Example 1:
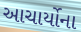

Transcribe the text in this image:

આચાર્યોના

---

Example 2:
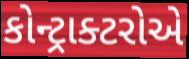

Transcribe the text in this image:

કોન્ટ્રાક્ટરોએ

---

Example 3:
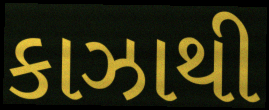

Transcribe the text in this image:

કાઝાથી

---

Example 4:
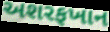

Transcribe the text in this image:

અશરફખાન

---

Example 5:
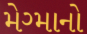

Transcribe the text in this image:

મેગ્માનો